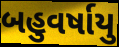
બહુવર્ષાયુ